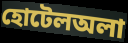
হোটেলঅলা